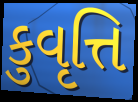
કુવૃત્તિ